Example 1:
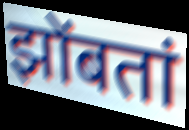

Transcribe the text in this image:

झोंबतां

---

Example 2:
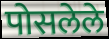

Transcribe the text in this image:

पोसलेले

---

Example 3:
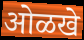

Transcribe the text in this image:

ओळखे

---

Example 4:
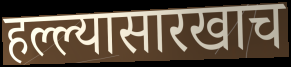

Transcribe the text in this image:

हल्ल्यासारखाच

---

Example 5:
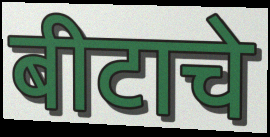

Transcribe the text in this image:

बीटाचे